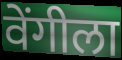
वेंगीला